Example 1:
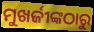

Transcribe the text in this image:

ମୁଖର୍ଜୀଙ୍କଠାରୁ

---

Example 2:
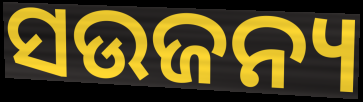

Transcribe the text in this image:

ସଉଜନ୍ୟ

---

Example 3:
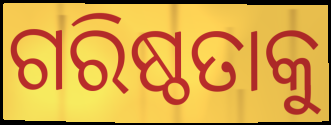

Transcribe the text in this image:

ଗରିଷ୍ଠତାକୁ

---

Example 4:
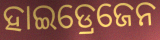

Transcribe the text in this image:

ହାଇଡ୍ରେଜେନ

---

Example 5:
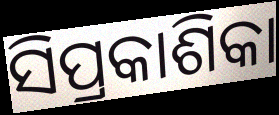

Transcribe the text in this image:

ସିପ୍ରକାଶିକା